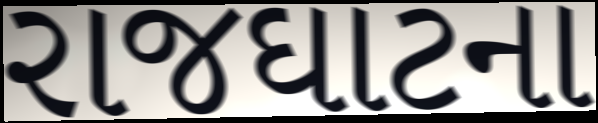
રાજઘાટના